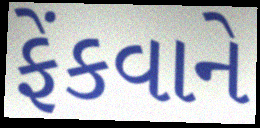
ફેંકવાને